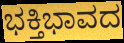
ಭಕ್ತಿಭಾವದ